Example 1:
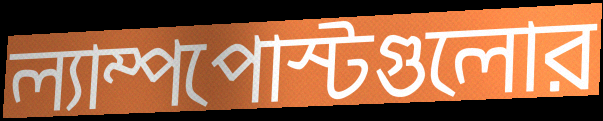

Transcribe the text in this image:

ল্যাম্পপোস্টগুলোর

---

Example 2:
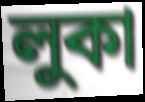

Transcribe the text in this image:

লুকা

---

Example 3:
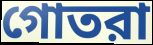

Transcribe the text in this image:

গোতরা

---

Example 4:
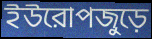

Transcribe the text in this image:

ইউরোপজুড়ে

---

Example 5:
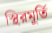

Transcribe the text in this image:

স্থিরমূর্তি